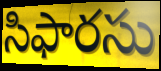
సిఫారసు